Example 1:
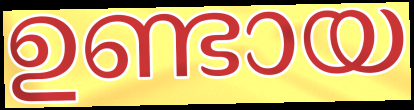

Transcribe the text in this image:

ഉണ്ടായ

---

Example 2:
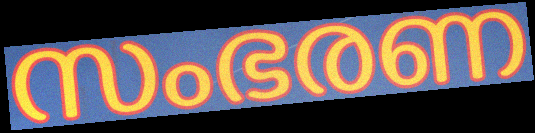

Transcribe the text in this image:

സംഭരണ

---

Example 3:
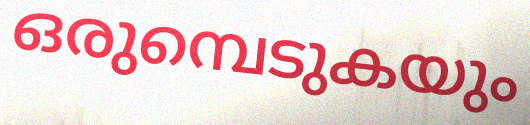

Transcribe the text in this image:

ഒരുമ്പെടുകയും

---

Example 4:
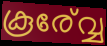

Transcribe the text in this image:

കൂര്വ്വേ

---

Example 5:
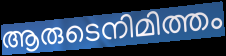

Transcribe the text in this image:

ആരുടെനിമിത്തം